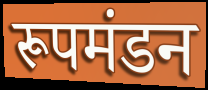
रूपमंडन